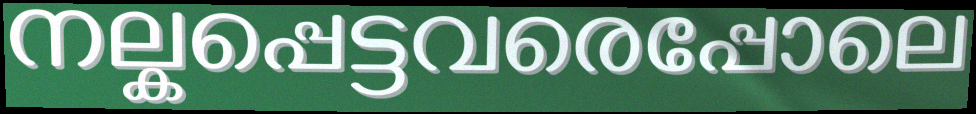
നല്കപ്പെട്ടവരെപ്പോലെ